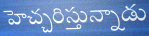
హెచ్చరిస్తున్నాడు